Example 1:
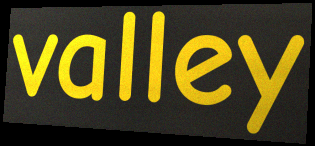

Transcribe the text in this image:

valley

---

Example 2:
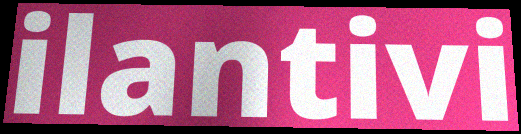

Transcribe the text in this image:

ilantivi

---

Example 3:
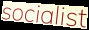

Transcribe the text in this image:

socialist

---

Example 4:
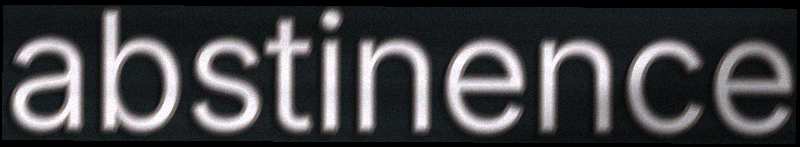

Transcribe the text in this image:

abstinence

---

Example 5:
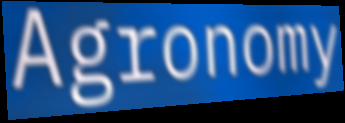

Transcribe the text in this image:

Agronomy